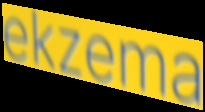
ekzema